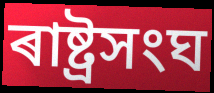
ৰাষ্ট্ৰসংঘ